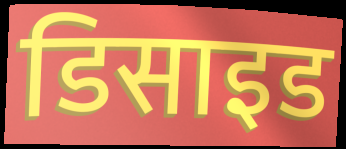
डिसाइड